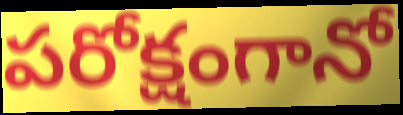
పరోక్షంగానో